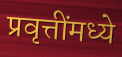
प्रवृत्तींमध्ये